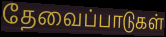
தேவைப்பாடுகள்